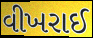
વીખરાઈ